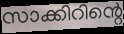
സാക്കിറിന്റെ